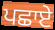
ਪਛਾਏ